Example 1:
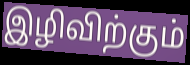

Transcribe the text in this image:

இழிவிற்கும்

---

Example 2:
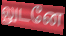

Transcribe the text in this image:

லுடனே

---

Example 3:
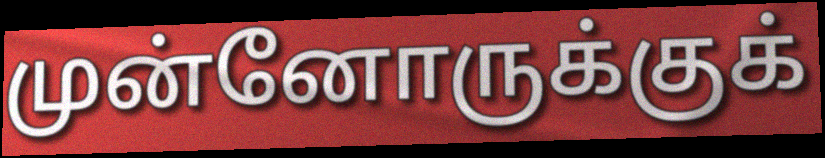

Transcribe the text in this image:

முன்னோருக்குக்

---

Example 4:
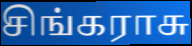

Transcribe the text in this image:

சிங்கராசு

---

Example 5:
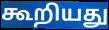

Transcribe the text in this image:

கூறியது